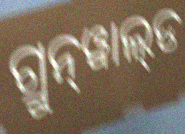
ଗ୍ରୁନ୍‌ୱାଲ୍‌ଡ